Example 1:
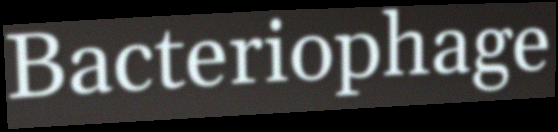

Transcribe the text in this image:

Bacteriophage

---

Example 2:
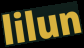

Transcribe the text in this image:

lilun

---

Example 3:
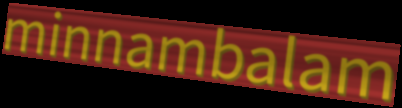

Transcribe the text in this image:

minnambalam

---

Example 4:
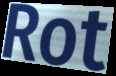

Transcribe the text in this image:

Rot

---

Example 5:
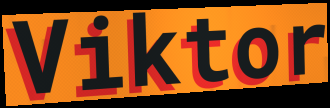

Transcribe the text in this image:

Viktor